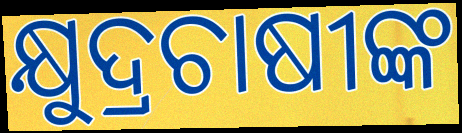
କ୍ଷୁଦ୍ରଚାଷୀଙ୍କ